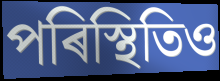
পৰিস্থিতিও